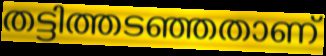
തട്ടിത്തടഞ്ഞതാണ്